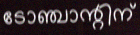
ടോഞ്ചാന്റിന്